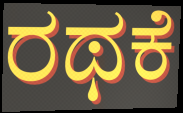
ರಥಕೆ